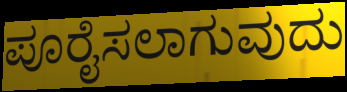
ಪೂರೈಸಲಾಗುವುದು